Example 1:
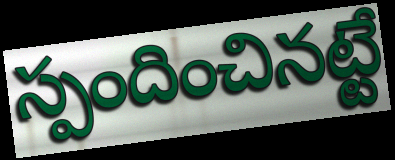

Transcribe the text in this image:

స్పందించినట్టే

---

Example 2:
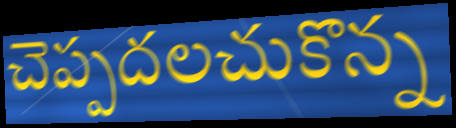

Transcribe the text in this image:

చెప్పదలచుకొన్న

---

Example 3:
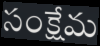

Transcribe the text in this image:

సంక్షేమ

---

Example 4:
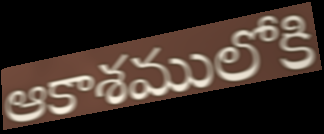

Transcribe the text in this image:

ఆకాశములోకి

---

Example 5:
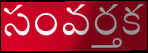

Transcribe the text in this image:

సంవర్తక